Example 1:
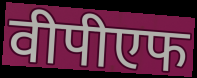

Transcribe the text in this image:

वीपीएफ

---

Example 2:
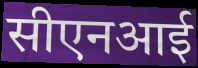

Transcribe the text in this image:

सीएनआई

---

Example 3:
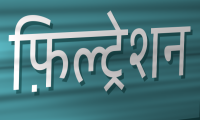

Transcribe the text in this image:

फ़िल्ट्रेशन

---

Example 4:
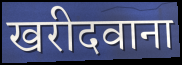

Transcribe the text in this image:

खरीदवाना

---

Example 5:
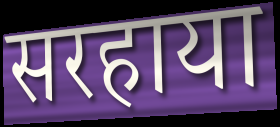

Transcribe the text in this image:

सरहाया